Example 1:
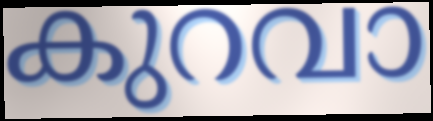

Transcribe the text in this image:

കുറവാ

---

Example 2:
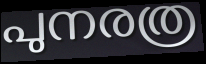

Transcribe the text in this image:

പുനരത്ര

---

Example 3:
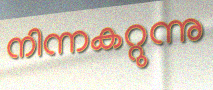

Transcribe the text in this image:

നിന്നകറ്റുന്നു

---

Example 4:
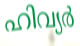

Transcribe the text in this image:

ഹിവ്യർ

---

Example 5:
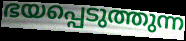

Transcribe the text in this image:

ഭയപ്പെടുത്തുന്ന